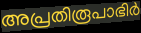
അപ്രതിരൂപാഭിർ